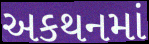
અકથનમાં